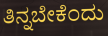
ತಿನ್ನಬೇಕೆಂದು